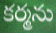
కర్మను